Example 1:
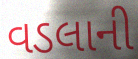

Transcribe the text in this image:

વડલાની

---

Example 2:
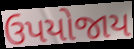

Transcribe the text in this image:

ઉપયોજાય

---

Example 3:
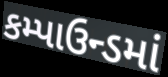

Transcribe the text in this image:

કમ્પાઉન્ડમાં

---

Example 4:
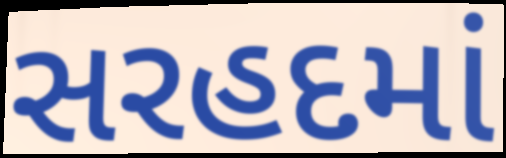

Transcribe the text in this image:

સરહદમાં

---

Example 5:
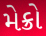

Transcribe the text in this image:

મેક્રો